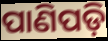
ପାଣିପଡ଼ି